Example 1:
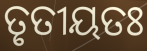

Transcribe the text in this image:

ତୃତୀୟତଃ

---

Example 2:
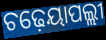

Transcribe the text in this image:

ଚଢ଼େୟାପଲ୍ଲୀ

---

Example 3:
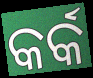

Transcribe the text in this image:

କର୍କ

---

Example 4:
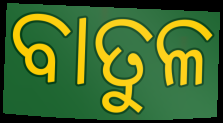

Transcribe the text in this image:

ବାତୁଳ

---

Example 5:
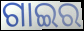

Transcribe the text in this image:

ଗାଇର